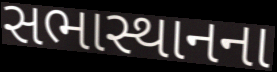
સભાસ્થાનના